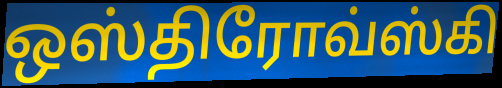
ஒஸ்திரோவ்ஸ்கி